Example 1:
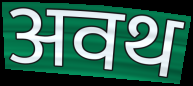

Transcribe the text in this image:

अवथ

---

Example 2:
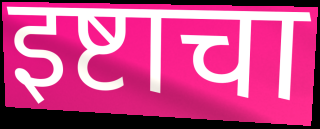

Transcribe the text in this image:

इष्टाचा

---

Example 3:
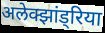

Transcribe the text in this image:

अलेक्झांड्रिया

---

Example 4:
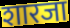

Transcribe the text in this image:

शारजा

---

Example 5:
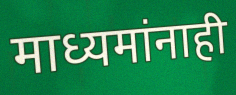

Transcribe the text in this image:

माध्यमांनाही